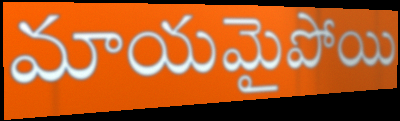
మాయమైపోయి